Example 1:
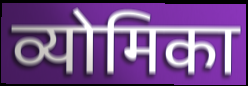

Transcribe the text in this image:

व्योमिका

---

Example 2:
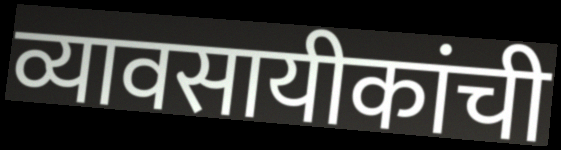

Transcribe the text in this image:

व्यावसायीकांची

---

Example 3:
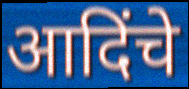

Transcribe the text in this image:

आदिंचे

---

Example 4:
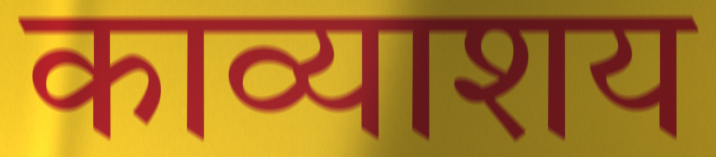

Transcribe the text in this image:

काव्याशय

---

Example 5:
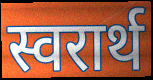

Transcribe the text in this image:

स्वरार्थ